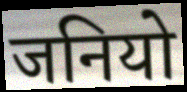
जनियो